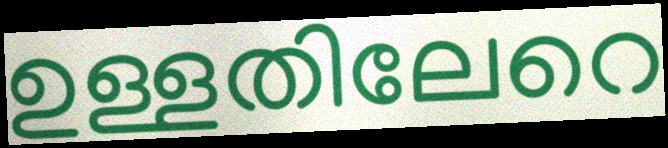
ഉള്ളതിലേറെ